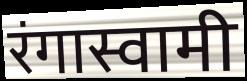
रंगास्वामी